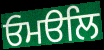
ਓਮੳਲਿ